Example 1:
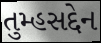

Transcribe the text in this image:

તુમ્હસદ્દેન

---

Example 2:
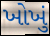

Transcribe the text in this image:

ખોખું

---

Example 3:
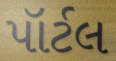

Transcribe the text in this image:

પૉર્ટલ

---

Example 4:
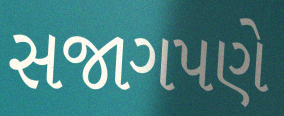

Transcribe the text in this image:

સજાગપણે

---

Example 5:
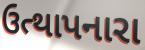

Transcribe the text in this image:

ઉત્થાપનારા